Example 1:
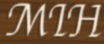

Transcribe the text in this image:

MIH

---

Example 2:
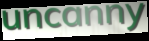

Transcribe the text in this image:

uncanny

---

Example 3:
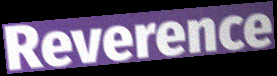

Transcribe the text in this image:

Reverence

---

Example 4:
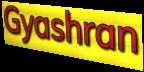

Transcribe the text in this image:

Gyashran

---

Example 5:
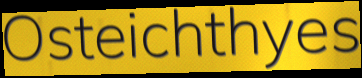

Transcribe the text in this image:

Osteichthyes